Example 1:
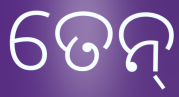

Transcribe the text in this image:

ତେନ୍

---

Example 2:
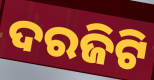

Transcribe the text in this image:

ଦରଜିଟି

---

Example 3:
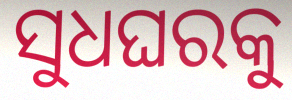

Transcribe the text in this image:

ସୁଧଘରକୁ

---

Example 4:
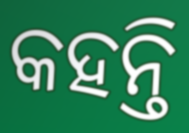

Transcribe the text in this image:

କହନ୍ତି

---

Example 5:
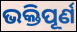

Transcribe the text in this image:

ଭକ୍ତିପୂର୍ଣ